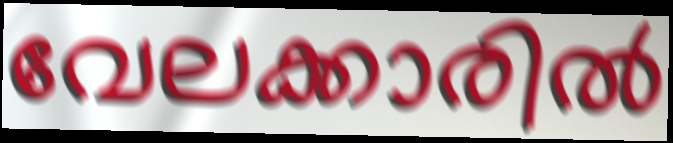
വേലക്കാരിൽ